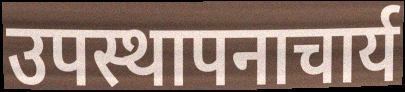
उपस्थापनाचार्य